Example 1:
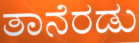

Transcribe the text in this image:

ತಾನೆರಡು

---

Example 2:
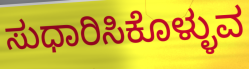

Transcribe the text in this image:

ಸುಧಾರಿಸಿಕೊಳ್ಳುವ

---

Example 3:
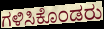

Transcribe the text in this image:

ಗಳಿಸಿಕೊಂಡರು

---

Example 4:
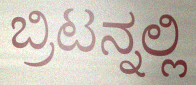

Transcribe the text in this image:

ಬ್ರಿಟನ್ನಲ್ಲಿ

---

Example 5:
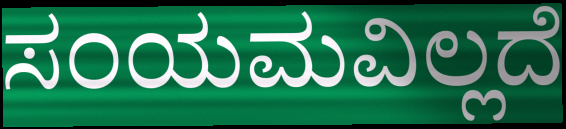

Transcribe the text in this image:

ಸಂಯಮವಿಲ್ಲದೆ